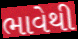
ભાવેથી